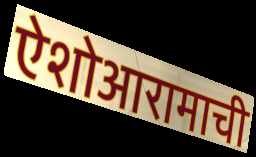
ऐशोआरामाची